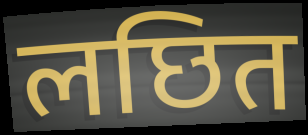
लछित